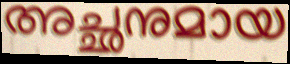
അച്ഛനുമായ